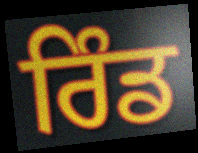
ਰਿੰਡ